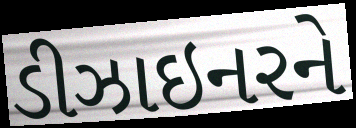
ડીઝાઇનરને